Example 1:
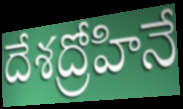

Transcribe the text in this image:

దేశద్రోహినే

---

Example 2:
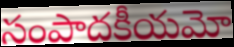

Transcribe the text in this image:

సంపాదకీయమో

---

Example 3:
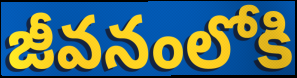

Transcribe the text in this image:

జీవనంలోకి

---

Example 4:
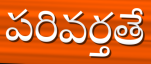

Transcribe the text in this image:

పరివర్తతే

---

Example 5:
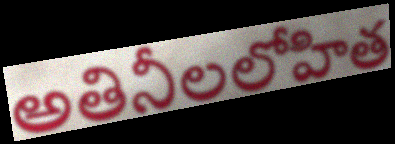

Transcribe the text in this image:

అతినీలలోహిత